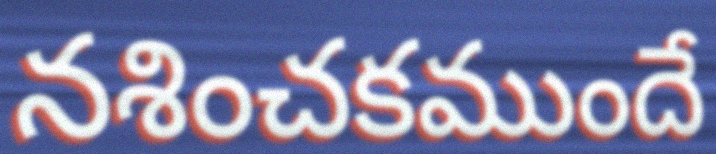
నశించకముందే